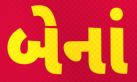
બેનાં